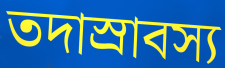
তদাস্রাবস্য